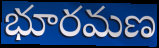
భూరమణ